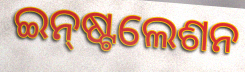
ଇନ୍‌ଷ୍ଟଲେଶନ